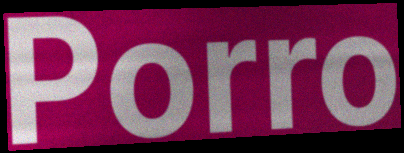
Porro